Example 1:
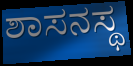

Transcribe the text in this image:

ಶಾಸನಸ್ಥ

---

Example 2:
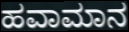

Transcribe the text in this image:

ಹವಾಮಾನ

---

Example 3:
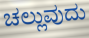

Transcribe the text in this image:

ಚಲ್ಲುವುದು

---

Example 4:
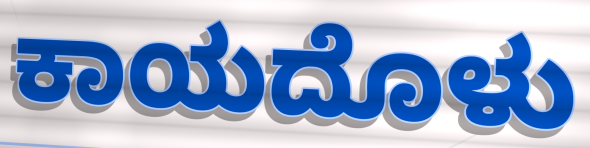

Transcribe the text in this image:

ಕಾಯದೊಳು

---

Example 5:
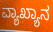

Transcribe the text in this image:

ವ್ಯಾಖ್ಯಾನ